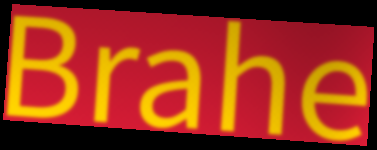
Brahe